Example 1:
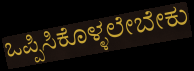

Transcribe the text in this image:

ಒಪ್ಪಿಸಿಕೊಳ್ಳಲೇಬೇಕು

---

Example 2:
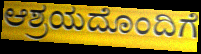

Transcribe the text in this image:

ಆಶ್ರಯದೊಂದಿಗೆ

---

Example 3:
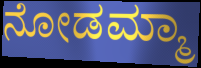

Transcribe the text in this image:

ನೋಡಮ್ಮಾ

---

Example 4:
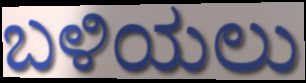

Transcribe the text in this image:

ಬಳಿಯಲು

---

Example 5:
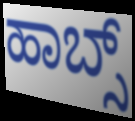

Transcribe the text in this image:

ಹಾಬ್ಸ್